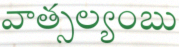
వాత్సల్యంబు